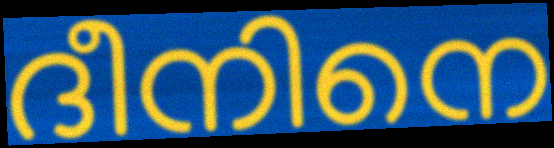
ദീനിനെ